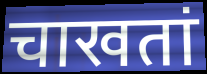
चाखतां